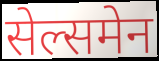
सेल्समेन